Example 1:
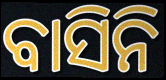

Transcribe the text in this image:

ବାସିନି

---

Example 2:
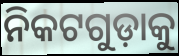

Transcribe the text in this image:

ନିକଟଗୁଡ଼ାକୁ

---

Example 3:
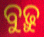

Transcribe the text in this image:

ବୁଢ଼ୁ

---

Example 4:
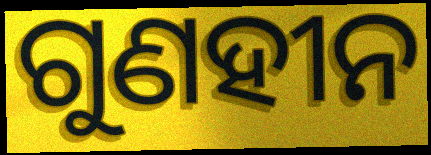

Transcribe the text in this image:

ଗୁଣହୀନ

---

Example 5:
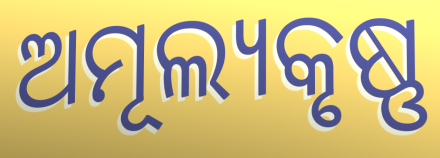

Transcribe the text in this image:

ଅମୂଲ୍ୟକୃଷ୍ଣ